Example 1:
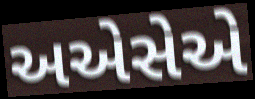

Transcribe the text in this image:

અએસેએ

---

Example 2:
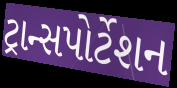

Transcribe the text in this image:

ટ્રાન્સપોર્ટેશન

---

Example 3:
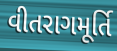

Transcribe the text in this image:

વીતરાગમૂર્તિ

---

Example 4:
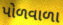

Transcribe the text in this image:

પોળવાળા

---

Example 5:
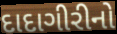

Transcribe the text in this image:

દાદાગીરીનો